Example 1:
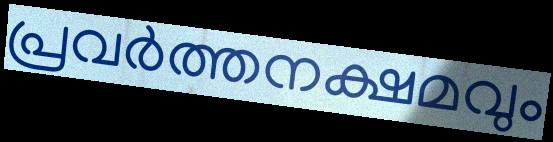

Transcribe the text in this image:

പ്രവർത്തനക്ഷമവും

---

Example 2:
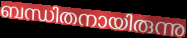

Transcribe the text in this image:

ബന്ധിതനായിരുന്നു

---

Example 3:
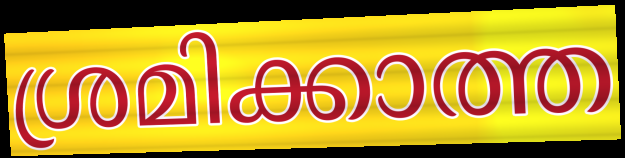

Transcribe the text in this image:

ശ്രമിക്കാത്ത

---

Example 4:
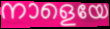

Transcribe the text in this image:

നാളെയേ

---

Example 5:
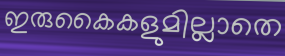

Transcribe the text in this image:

ഇരുകൈകളുമില്ലാതെ